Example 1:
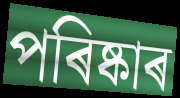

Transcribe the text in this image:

পৰিষ্কাৰ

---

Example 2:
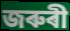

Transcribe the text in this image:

জৰুৰী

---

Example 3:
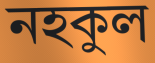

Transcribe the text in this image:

নহকুল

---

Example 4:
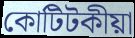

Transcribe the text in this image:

কোটিটকীয়া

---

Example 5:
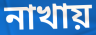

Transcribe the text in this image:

নাখায়